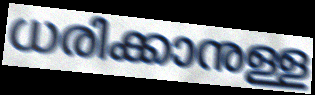
ധരിക്കാനുള്ള